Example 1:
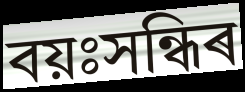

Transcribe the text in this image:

বয়ঃসন্ধিৰ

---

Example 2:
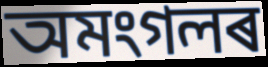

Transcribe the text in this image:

অমংগলৰ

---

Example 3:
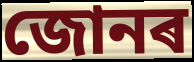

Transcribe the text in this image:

জোনৰ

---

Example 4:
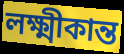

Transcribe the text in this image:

লক্ষ্মীকান্ত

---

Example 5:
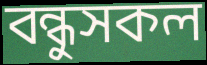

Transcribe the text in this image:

বন্ধুসকল